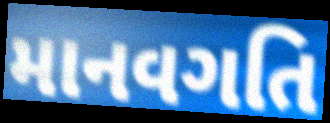
માનવગતિ